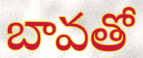
బావతో